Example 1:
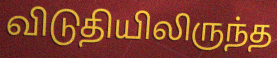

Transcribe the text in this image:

விடுதியிலிருந்த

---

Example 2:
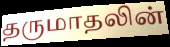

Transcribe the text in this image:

தருமாதலின்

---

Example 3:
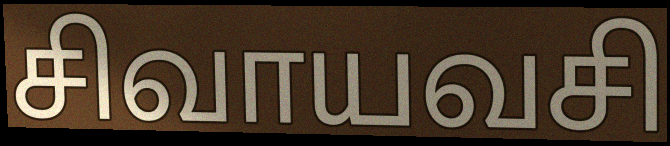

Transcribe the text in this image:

சிவாயவசி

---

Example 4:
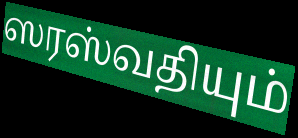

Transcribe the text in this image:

ஸரஸ்வதியும்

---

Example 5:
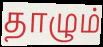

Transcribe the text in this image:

தாழும்